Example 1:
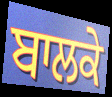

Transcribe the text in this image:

ਬਾਲਕੇ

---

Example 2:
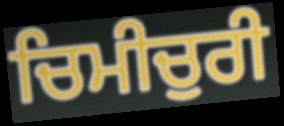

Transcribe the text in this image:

ਚਿਮੀਚੁਰੀ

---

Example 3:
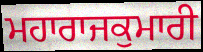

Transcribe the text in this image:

ਮਹਾਰਾਜਕੁਮਾਰੀ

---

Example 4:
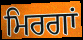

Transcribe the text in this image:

ਮਿਰਗਾਂ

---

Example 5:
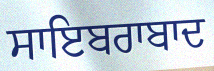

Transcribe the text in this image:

ਸਾਇਬਰਾਬਾਦ